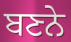
ਬਣਨੇ